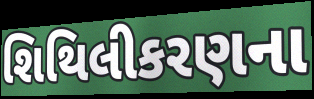
શિથિલીકરણના